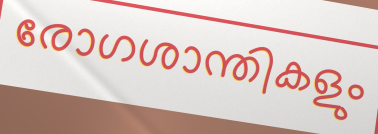
രോഗശാന്തികളും